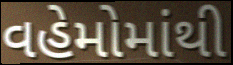
વહેમોમાંથી